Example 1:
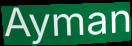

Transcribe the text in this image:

Ayman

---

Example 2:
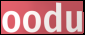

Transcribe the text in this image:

oodu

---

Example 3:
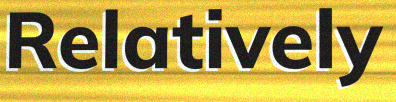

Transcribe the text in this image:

Relatively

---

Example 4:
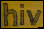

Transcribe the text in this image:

hiv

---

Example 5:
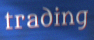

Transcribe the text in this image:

trading